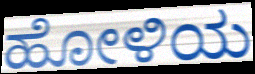
ಹೋಳಿಯ